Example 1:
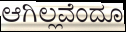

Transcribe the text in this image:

ಆಗಿಲ್ಲವೆಂದೂ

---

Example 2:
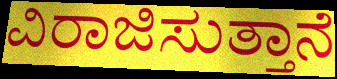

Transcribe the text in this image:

ವಿರಾಜಿಸುತ್ತಾನೆ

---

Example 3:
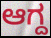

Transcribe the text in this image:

ಆಗ್ದ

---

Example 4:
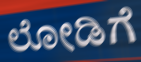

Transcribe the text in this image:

ಲೋಡಿಗೆ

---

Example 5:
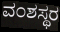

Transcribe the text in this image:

ವಂಶಸ್ಥರ